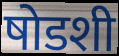
षोडशी